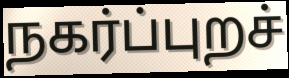
நகர்ப்புறச்